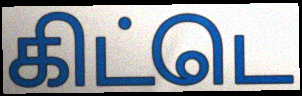
கிட்டெ